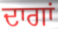
ਦਾਗਾਂ